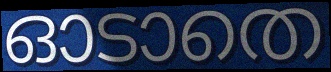
ഓടാതെ